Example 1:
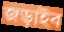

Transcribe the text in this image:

জড়াইব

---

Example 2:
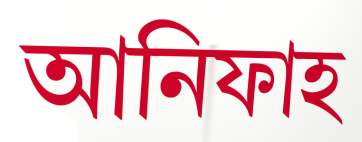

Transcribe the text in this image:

আনিফাহ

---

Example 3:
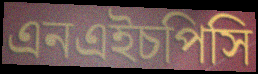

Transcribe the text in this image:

এনএইচপিসি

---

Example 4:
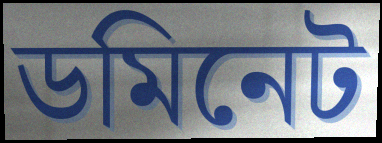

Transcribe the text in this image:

ডমিনেট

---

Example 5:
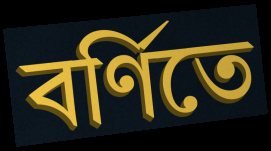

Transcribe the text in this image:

বর্ণিতে